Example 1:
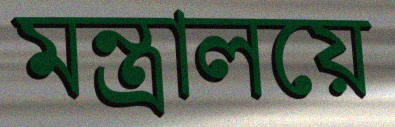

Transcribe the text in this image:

মন্ত্ৰালয়ে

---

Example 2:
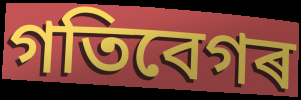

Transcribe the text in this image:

গতিবেগৰ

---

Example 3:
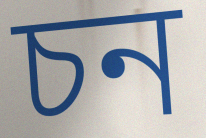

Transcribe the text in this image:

চন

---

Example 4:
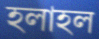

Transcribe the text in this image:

হলাহল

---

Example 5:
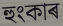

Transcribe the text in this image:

হুংকাৰ